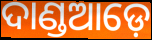
ଦାଣ୍ଡଆଡ଼େ